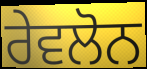
ਰੇਵਲੋਨ